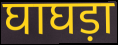
घाघड़ा